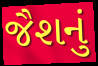
જૈશનું